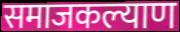
समाजकल्याण